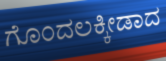
ಗೊಂದಲಕ್ಕೀಡಾದ